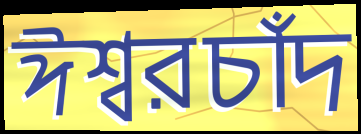
ঈশ্বরচাঁদ